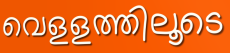
വെളളത്തിലൂടെ